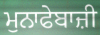
ਮੁਨਾਫੇਬਾਜ਼ੀ